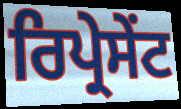
ਰਿਪ੍ਰੇਸੇੰਟ